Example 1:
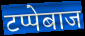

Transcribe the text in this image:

टप्पेबाज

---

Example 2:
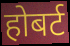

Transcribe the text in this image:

होबर्ट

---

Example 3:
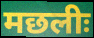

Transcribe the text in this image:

मछलीः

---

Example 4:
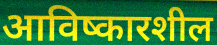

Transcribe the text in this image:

आविष्कारशील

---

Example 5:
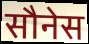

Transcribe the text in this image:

सौनेस